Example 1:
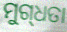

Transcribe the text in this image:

ମୁଗ୍‌ଧତା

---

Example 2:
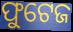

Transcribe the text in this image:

ଫୁଟେଜ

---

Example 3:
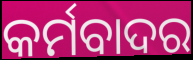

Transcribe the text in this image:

କର୍ମବାଦର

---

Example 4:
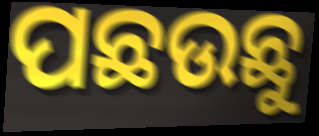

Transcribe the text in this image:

ପଛଉଛୁ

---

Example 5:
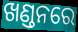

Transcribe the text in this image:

ଖଣ୍ଡନରେ